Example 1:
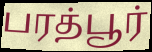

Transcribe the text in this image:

பரத்பூர்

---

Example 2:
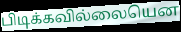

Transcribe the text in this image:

பிடிக்கவில்லையென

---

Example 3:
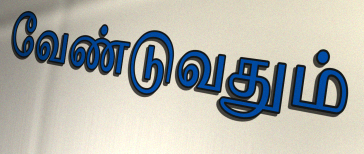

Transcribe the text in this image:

வேண்டுவதும்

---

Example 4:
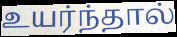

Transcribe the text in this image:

உயர்ந்தால்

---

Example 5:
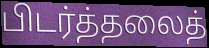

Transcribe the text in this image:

பிடர்த்தலைத்